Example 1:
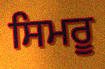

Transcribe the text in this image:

ਸਿਮਰੂ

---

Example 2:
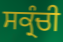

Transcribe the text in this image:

ਸਕ੍ਰੰਚੀ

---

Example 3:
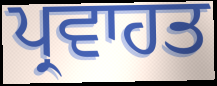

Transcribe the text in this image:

ਪ੍ਰਵਾਹਤ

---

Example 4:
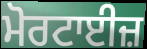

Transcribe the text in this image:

ਮੋਰਟਾਈਜ਼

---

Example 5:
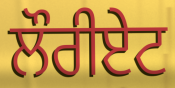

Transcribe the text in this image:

ਲੌਰੀਏਟ